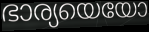
ഭാര്യയെയോ